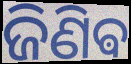
ଜିଣିଵ